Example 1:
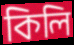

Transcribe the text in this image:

কিলি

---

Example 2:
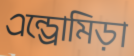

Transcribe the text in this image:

এন্ড্রোমিড়া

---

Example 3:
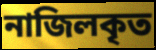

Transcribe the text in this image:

নাজিলকৃত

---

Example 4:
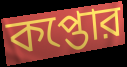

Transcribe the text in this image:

কপ্তোর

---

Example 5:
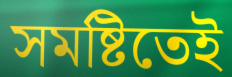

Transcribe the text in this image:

সমষ্টিতেই